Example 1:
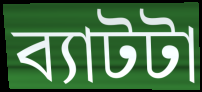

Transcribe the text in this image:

ব্যাটটা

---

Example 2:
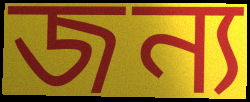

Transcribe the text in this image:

জন্য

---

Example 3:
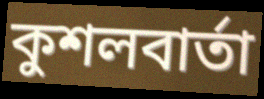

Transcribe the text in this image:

কুশলবার্তা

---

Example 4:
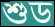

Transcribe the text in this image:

শুড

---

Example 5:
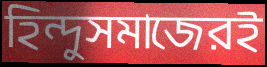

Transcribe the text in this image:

হিন্দুসমাজেরই